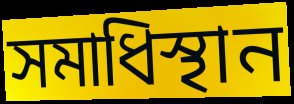
সমাধিস্থান